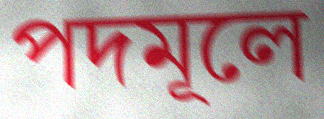
পদমূলে